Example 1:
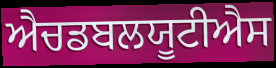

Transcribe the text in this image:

ਐਚਡਬਲਯੂਟੀਐਸ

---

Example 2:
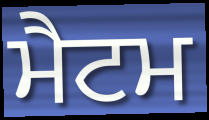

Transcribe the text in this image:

ਮੈਟਮ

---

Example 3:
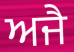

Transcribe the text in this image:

ਅਜੈ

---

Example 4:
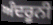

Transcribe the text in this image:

ਅੰਦਰੂਨੀ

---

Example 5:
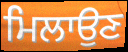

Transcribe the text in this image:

ਮਿਲਾਉਣ